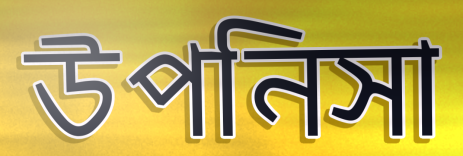
উপনিসা